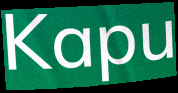
Kapu